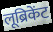
लूब्रिकेंट